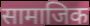
सामाजिक